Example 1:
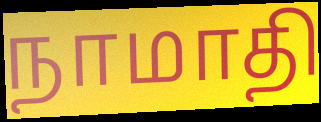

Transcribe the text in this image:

நாமாதி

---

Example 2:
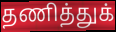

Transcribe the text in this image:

தணித்துக்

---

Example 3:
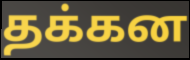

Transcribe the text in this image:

தக்கன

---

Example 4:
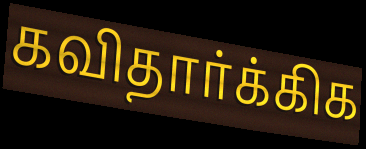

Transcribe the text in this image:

கவிதார்க்கிக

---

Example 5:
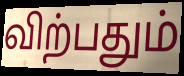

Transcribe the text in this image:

விற்பதும்